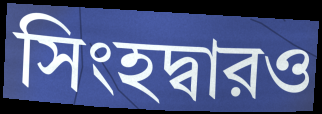
সিংহদ্বারও